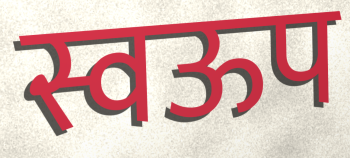
स्वऊप